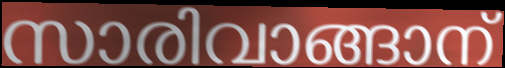
സാരിവാങ്ങാന്